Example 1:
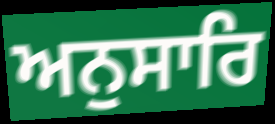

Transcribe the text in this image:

ਅਨੁਸਾਰਿ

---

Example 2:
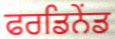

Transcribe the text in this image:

ਫਰਡਿਨੇਂਡ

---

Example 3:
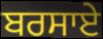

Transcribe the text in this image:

ਬਰਸਾਏ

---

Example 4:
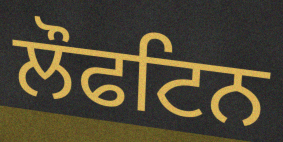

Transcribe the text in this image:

ਲੌਫਟਿਨ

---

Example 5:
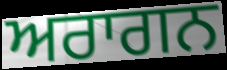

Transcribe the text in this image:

ਅਰਾਗਨ